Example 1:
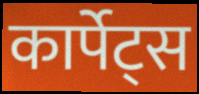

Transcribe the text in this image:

कार्पेट्स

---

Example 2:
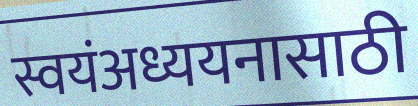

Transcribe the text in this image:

स्वयंअध्ययनासाठी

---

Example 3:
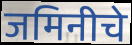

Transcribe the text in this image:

जमिनीचे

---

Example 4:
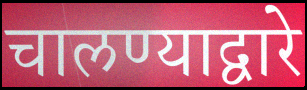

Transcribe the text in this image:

चालण्याद्वारे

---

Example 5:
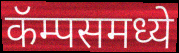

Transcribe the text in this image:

कॅम्पसमध्ये